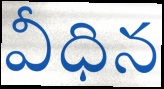
వీధిన